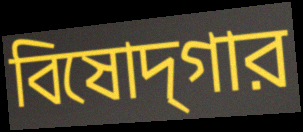
বিষোদ্‌গার